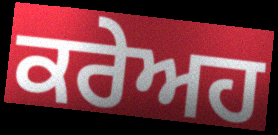
ਕਰੇਅਹ